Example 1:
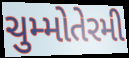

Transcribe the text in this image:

ચુમ્મોતેરમી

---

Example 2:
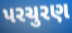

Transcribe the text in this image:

પરચુરણ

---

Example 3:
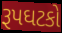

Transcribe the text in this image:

રૂપઘટકો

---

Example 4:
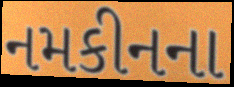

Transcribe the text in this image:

નમકીનના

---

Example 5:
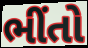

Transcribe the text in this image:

ભીંતો